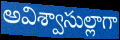
అవిశ్వాసుల్లాగా